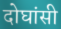
दोघांसी